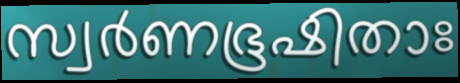
സ്വർണഭൂഷിതാഃ